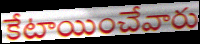
కేటాయించేవారు